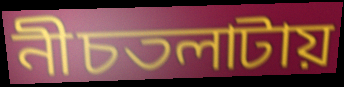
নীচতলাটায়